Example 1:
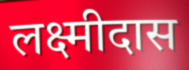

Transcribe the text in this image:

लक्ष्मीदास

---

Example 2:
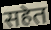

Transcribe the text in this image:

सहेत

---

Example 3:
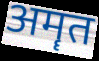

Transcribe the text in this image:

अमॄत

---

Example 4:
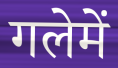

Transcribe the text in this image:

गलेमें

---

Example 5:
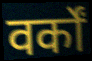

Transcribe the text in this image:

वर्कों